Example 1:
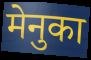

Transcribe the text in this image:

मेनुका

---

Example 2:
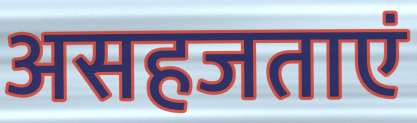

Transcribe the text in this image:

असहजताएं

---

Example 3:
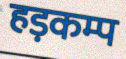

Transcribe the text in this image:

हड़कम्प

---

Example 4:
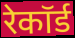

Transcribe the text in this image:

रेकॉर्ड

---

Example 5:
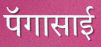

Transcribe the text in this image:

पॅगासाई